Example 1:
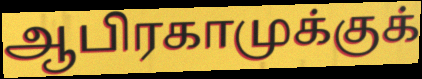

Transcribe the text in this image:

ஆபிரகாமுக்குக்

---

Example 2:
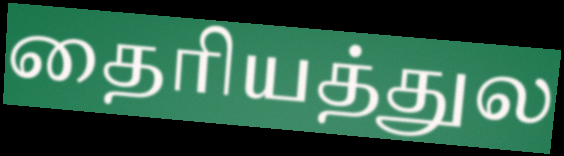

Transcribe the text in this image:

தைரியத்துல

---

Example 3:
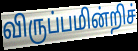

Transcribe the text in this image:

விருப்பமின்றிச்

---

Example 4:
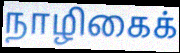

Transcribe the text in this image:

நாழிகைக்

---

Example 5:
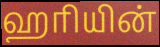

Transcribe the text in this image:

ஹரியின்